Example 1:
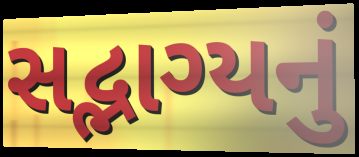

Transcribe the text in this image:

સદ્ભાગ્યનું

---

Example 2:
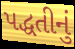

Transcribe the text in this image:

પદ્ધતીનું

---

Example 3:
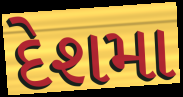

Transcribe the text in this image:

દેશમા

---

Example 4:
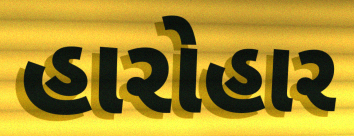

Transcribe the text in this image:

હારોહાર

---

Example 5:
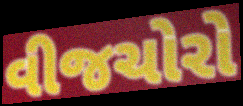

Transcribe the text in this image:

વીજચોરો